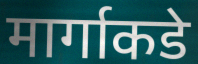
मार्गाकडे